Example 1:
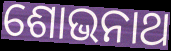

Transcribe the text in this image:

ଶୋଭନାଥ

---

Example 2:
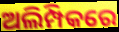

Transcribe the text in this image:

ଅଲିମ୍ପିକରେ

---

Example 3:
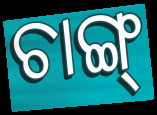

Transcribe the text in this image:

ଚାଙ୍ଗ୍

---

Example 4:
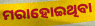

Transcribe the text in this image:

ମରାହୋଇଥିବା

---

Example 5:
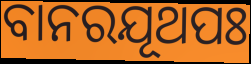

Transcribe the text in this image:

ବାନରଯୂଥପଃ